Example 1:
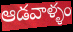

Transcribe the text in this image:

ఆడవాళ్ళం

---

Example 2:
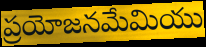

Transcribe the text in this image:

ప్రయోజనమేమియు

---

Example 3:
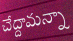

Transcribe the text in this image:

చేద్దామన్నా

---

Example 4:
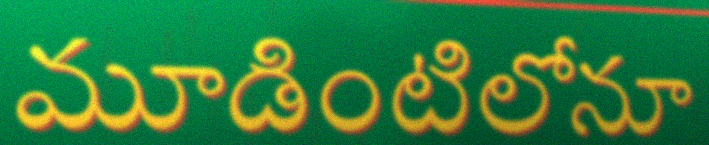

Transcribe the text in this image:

మూడింటిలోనూ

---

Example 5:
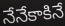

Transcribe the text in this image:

నేనేకాకినే